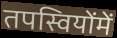
तपस्वियोंमें